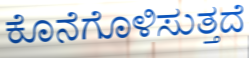
ಕೊನೆಗೊಳಿಸುತ್ತದೆ